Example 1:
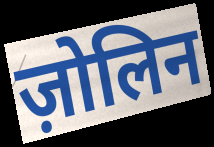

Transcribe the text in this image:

ज़ोलिन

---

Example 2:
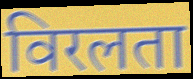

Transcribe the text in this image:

विरलता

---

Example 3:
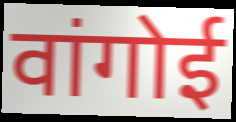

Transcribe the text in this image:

वांगोई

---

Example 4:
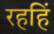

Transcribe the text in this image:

रहहिं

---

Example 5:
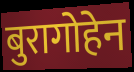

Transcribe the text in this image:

बुरागोहेन